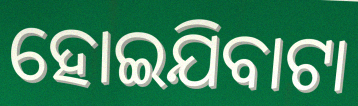
ହୋଇଯିବାଟା